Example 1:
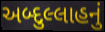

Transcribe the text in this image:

અબ્દુલ્લાહનું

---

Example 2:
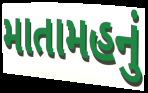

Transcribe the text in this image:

માતામહનું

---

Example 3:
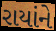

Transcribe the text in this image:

રાયાંને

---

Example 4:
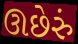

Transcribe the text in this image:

ઊછેરું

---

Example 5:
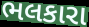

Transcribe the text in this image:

ભલકારા